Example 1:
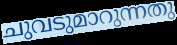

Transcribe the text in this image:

ചുവടുമാറുന്നതു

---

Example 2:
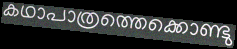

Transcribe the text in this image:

കഥാപാത്രത്തെക്കൊണ്ടു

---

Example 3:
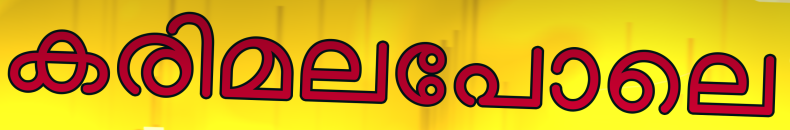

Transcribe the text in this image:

കരിമലപോലെ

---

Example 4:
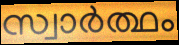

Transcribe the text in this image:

സ്വാർത്ഥം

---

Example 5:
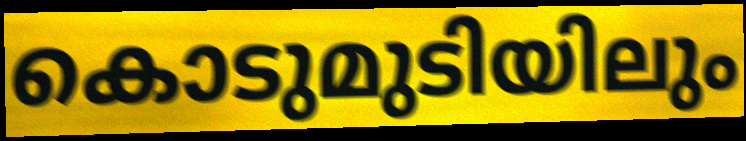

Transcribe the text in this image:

കൊടുമുടിയിലും